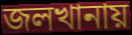
জলখানায়